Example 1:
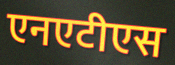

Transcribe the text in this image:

एनएटीएस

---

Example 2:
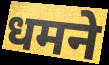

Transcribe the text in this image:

धमने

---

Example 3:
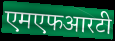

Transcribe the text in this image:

एमएफआरटी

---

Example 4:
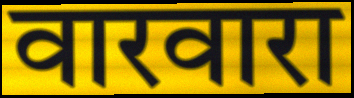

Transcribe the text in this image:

वारवारा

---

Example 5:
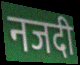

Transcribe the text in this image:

नजदी